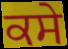
ਕਸੇ